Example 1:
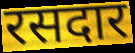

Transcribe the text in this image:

रसदार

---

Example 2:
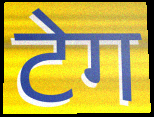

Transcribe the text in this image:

टेग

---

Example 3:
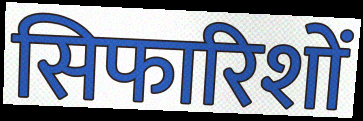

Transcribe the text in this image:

सिफारिशों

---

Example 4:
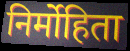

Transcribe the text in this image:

निर्मोहिता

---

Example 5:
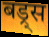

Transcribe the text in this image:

बड्र्स